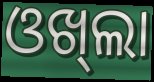
ଓଖ୍‌ଲା